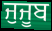
ਜੁਜੂਬ